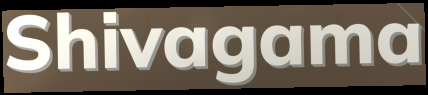
Shivagama